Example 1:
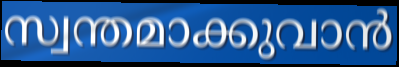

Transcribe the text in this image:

സ്വന്തമാക്കുവാൻ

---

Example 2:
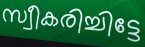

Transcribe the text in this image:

സ്വീകരിച്ചിട്ടേ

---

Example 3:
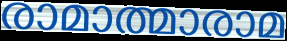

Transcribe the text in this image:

രാമാത്മാരാമ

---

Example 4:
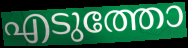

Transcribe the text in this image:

എടുത്തോ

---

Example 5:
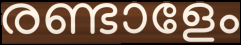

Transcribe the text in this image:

രണ്ടാളേം